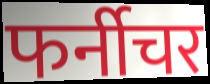
फर्नीचर